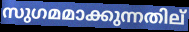
സുഗമമാക്കുന്നതില്